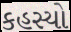
કહસ્યો